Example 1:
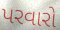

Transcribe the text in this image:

પરવારો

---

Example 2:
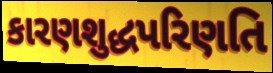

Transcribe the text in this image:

કારણશુદ્ધપરિણતિ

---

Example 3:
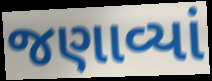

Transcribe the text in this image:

જણાવ્યાં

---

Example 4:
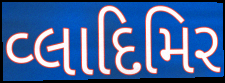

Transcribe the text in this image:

વ્લાદિમિર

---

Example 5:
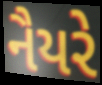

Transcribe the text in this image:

નૈયરે